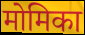
मोमिका